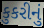
કુકરીનું